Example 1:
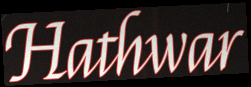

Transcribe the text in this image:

Hathwar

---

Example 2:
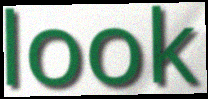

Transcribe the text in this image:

look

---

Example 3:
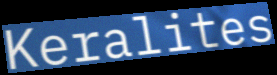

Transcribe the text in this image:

Keralites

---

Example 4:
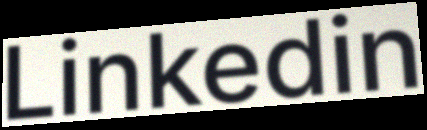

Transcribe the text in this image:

Linkedin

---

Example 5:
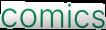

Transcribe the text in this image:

comics